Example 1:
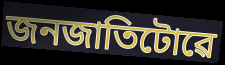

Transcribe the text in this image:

জনজাতিটোৱে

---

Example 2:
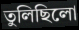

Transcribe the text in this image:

তুলিছিলো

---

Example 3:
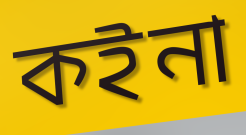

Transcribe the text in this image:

কইনা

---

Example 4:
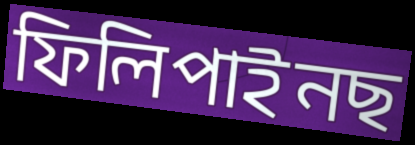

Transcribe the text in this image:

ফিলিপাইনছ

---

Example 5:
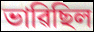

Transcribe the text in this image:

ভাৱিছিল